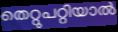
തെറ്റുപറ്റിയാൽ